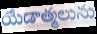
యేడాత్మలును